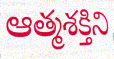
ఆత్మశక్తిని